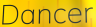
Dancer